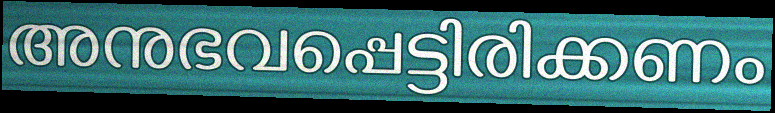
അനുഭവപ്പെട്ടിരിക്കണം